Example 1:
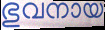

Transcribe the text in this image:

ഭുവനായ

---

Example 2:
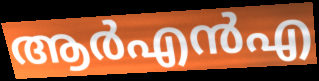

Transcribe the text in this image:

ആർഎൻഎ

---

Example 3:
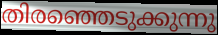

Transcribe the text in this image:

തിരഞ്ഞെടുക്കുന്നു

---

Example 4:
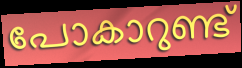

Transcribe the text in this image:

പോകാറുണ്ട്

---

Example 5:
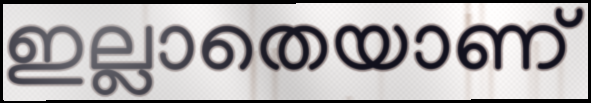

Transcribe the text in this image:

ഇല്ലാതെയാണ്